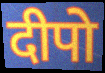
दीपो